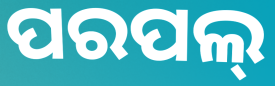
ପରପଲ୍